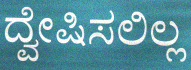
ದ್ವೇಷಿಸಲಿಲ್ಲ